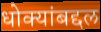
धोक्यांबद्दल